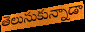
తెలుసుకున్నాడా